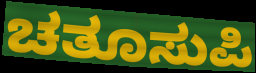
ಚತೂಸುಪಿ